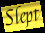
Slept